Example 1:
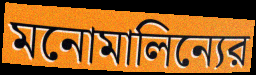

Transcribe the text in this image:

মনোমালিন্যের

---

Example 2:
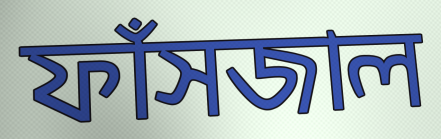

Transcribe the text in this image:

ফাঁসজাল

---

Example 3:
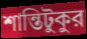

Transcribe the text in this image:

শান্তিটুকুর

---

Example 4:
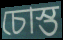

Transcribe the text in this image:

চোস্ত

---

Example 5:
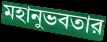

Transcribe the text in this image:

মহানুভবতার